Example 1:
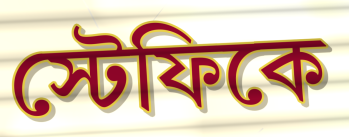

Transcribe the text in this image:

স্টেফিকে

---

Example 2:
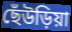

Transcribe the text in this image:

ছেঁউড়িয়া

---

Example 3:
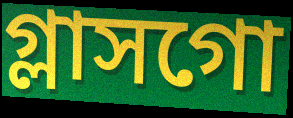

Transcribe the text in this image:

গ্লাসগো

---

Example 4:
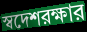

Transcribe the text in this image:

স্বদেশরক্ষার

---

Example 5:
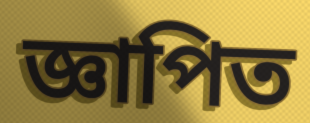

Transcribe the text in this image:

জ্ঞাপিত